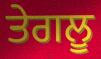
ਤੇਗਲੂ